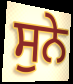
ਸੁਨੇ